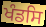
ਖੰਡਸਿ